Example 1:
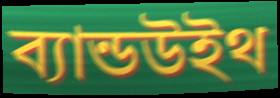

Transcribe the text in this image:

ব্যান্ডউইথ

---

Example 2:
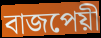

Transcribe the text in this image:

বাজপেয়ী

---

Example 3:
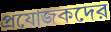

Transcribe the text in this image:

প্রযোজকদের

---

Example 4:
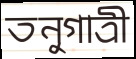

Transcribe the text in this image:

তনুগাত্রী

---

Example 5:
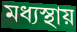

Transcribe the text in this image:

মধ্যস্থায়